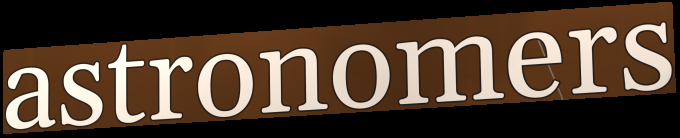
astronomers